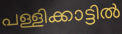
പള്ളിക്കാട്ടിൽ